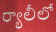
ర్యాలీలో